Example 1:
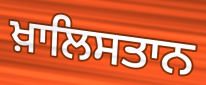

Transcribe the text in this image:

ਖ਼ਾਲਿਸਤਾਨ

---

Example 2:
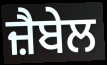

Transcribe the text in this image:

ਜ਼ੈਬੇਲ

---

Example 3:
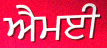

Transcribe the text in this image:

ਐਮਈ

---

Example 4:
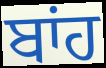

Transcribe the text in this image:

ਬਾਂਹ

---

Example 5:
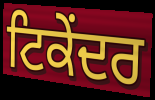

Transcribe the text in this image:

ਟਿਕੇਂਦਰ